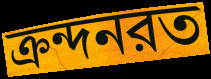
ক্রন্দনরত